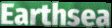
Earthsea